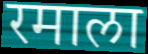
रमाला